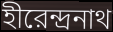
হীরেন্দ্রনাথ